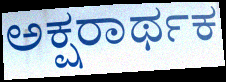
ಅಕ್ಷರಾರ್ಥಕ